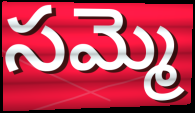
సమ్మె